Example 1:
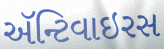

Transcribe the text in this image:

ઍન્ટિવાઇરસ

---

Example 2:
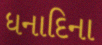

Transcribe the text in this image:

ધનાદિના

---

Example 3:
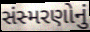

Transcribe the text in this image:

સંસ્મરણોનું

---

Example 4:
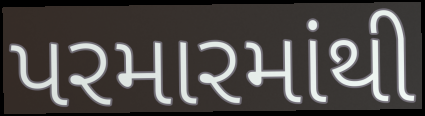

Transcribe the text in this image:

પરમારમાંથી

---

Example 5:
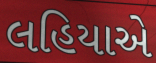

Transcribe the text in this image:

લહિયાએ